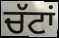
ਚੱਟਾਂ